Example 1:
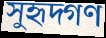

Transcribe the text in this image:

সুহৃদ্গণ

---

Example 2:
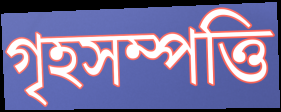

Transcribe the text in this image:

গৃহসম্পত্তি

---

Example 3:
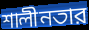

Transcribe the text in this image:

শালীনতার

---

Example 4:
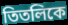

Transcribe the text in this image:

তিতলিকে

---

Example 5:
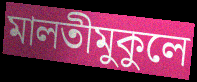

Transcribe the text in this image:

মালতীমুকুলে